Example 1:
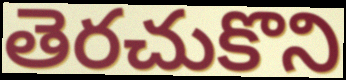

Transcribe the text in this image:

తెరచుకొని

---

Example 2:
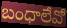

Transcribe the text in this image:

బంధాలేవో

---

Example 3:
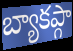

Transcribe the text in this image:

బ్యాకప్గా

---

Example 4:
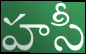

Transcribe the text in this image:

హసీ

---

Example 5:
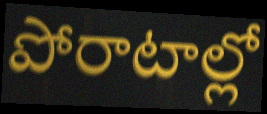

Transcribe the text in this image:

పోరాటాల్లో